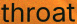
throat